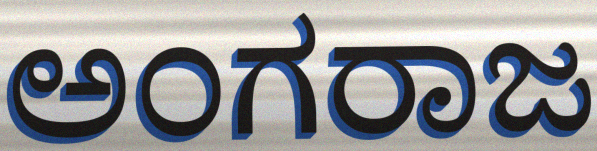
ಅಂಗರಾಜ